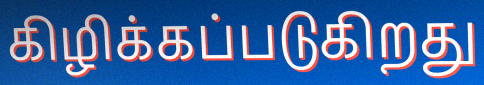
கிழிக்கப்படுகிறது